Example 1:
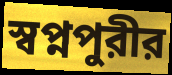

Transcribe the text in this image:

স্বপ্নপুরীর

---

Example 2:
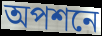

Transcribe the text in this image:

অপশনে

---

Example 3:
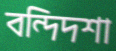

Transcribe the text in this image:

বন্দিদশা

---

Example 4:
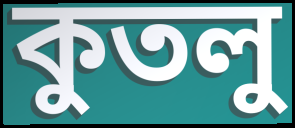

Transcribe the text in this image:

কুতলু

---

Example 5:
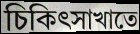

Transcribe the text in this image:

চিকিৎসাখাতে